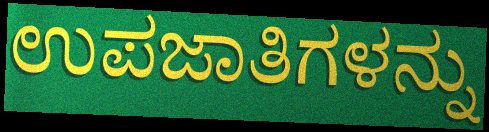
ಉಪಜಾತಿಗಳನ್ನು